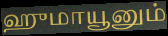
ஹுமாயூனும்